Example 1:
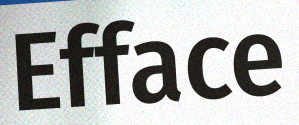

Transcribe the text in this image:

Efface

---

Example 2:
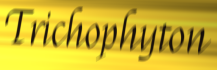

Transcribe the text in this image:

Trichophyton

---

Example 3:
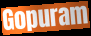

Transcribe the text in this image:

Gopuram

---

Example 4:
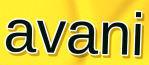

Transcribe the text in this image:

avani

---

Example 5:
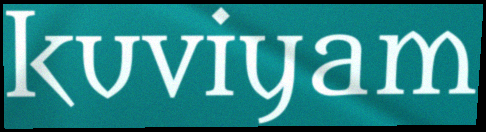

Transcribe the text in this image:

kuviyam